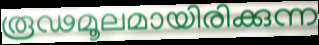
രൂഢമൂലമായിരിക്കുന്ന